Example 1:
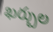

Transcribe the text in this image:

ఖర్చుల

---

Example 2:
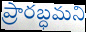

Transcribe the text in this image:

ప్రారబ్ధమని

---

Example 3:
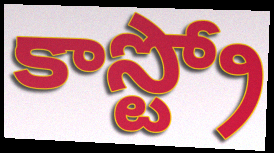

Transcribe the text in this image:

కాస్ట్రో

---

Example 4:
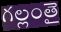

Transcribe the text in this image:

గల్లంతై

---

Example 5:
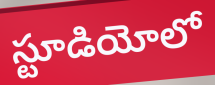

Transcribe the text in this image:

స్టూడియోలో